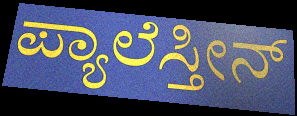
ಪ್ಯಾಲೆಸ್ತೀನ್